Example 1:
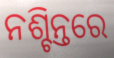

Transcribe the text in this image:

ନଶ୍ଚିନ୍ତରେ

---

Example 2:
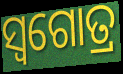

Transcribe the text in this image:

ସ୍ୱଗୋତ୍ର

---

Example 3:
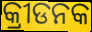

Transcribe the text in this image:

କ୍ରୀଡନକ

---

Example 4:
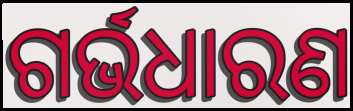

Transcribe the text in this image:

ଗର୍ଭଧାରଣ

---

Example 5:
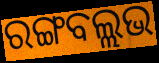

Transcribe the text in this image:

ରଙ୍ଗବଲ୍ଲଭ